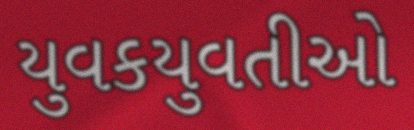
યુવકયુવતીઓ